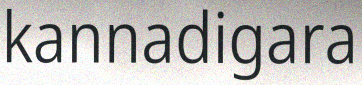
kannadigara